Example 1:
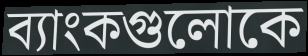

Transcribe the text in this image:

ব্যাংকগুলোকে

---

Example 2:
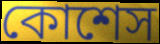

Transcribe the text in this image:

কোশেস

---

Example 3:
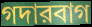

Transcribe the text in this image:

গদারবাগ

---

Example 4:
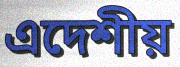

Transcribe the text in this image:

এদেশীয়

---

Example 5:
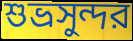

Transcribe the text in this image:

শুভ্রসুন্দর